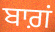
ਬਾਗ਼ਂ